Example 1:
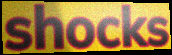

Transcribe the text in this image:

shocks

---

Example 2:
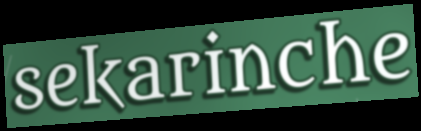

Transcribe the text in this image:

sekarinche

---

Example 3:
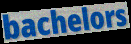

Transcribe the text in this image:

bachelors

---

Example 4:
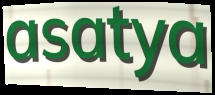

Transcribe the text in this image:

asatya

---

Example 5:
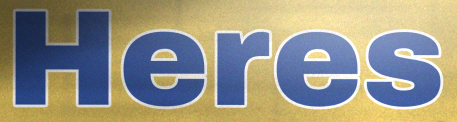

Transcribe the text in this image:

Heres